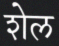
शेल